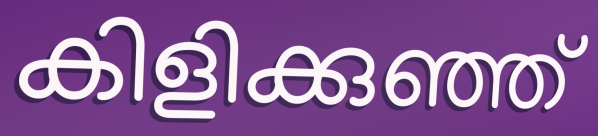
കിളിക്കുഞ്ഞ്